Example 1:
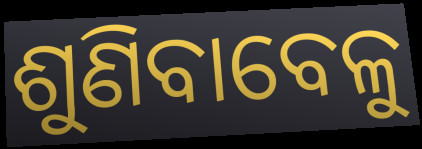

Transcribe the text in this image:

ଶୁଣିବାବେଳୁ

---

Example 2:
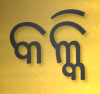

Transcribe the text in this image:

କଳ୍କି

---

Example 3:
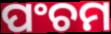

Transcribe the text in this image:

ପଂଚମ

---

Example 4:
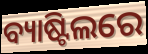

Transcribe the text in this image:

ବ୍ୟାଷ୍ଟିଲରେ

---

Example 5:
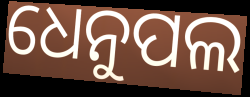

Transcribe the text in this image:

ଧେନୁପଲ